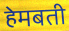
हेमबती